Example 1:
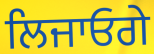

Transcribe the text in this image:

ਲਿਜਾਓਗੇ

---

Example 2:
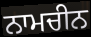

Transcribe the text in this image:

ਨਾਮਚੀਨ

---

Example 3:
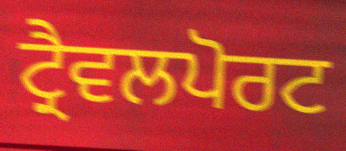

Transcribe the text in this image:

ਟ੍ਰੈਵਲਪੋਰਟ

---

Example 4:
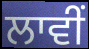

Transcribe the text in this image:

ਲਾਵੀਂ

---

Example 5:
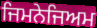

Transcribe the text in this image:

ਜਿਮਨੇਜਿਅਮ